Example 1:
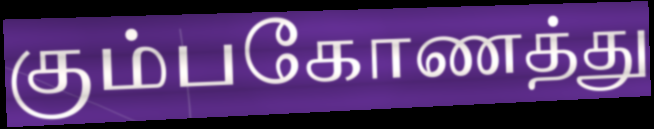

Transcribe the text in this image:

கும்பகோணத்து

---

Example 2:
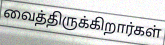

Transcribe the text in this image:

வைத்திருக்கிறார்கள்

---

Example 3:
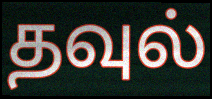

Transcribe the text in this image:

தவுல்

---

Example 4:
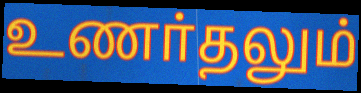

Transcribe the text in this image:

உணர்தலும்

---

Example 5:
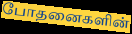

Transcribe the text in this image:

போதனைகளின்